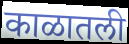
काळातली